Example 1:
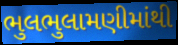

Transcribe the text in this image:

ભુલભુલામણીમાંથી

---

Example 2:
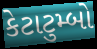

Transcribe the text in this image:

કેટાટુમ્બો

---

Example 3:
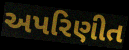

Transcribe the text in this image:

અપરિણીત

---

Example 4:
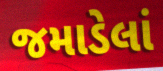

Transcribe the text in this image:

જમાડેલાં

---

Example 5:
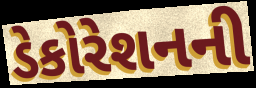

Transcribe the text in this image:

ડેકોરેશનની